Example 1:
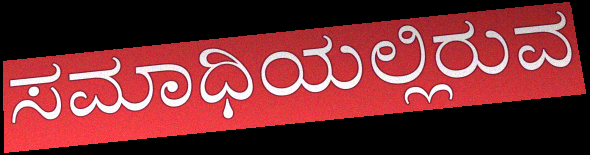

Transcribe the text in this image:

ಸಮಾಧಿಯಲ್ಲಿರುವ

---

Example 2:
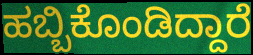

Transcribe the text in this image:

ಹಬ್ಬಿಕೊಂಡಿದ್ದಾರೆ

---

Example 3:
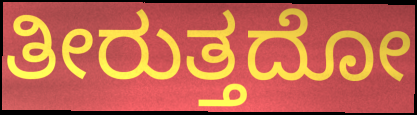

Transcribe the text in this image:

ತೀರುತ್ತದೋ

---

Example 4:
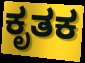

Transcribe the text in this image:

ಕೃತಕ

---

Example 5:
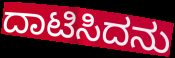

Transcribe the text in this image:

ದಾಟಿಸಿದನು